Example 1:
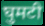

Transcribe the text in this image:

घुमटी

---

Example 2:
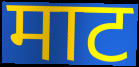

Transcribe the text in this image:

माट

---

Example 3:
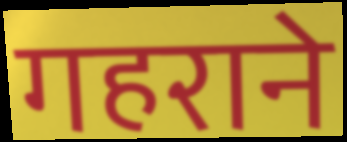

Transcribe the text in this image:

गहराने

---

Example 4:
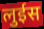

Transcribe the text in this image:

लुईस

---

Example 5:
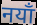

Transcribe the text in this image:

नयाँ